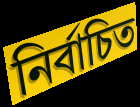
নির্বাচিত